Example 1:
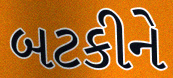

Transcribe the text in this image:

બટકીને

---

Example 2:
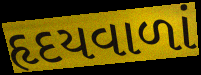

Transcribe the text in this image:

હૃદયવાળાં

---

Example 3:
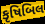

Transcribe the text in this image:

કૃષિબિલ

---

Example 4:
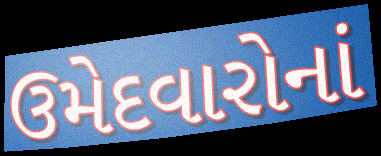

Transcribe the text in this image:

ઉમેદવારોનાં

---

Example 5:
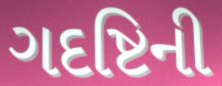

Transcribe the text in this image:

ગદષ્ટિની